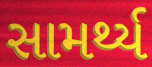
સામર્થ્ય